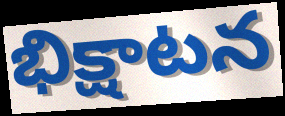
భిక్షాటన